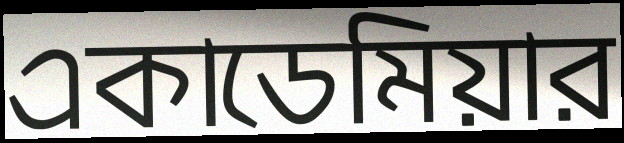
একাডেমিয়ার